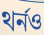
থর্নও